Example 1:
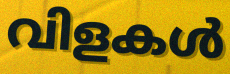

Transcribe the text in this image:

വിളകൾ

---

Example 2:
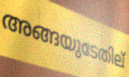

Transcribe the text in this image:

അങ്ങയുടേതില്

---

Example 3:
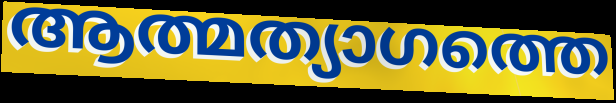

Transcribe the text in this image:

ആത്മത്യാഗത്തെ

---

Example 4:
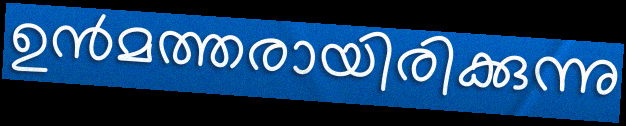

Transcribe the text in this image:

ഉൻമത്തരായിരിക്കുന്നു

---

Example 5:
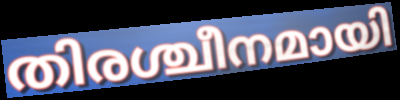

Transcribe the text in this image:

തിരശ്ചീനമായി